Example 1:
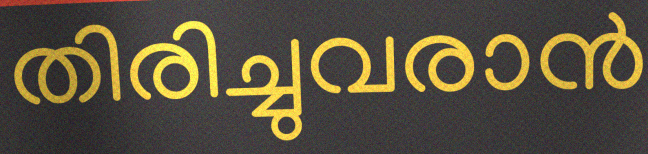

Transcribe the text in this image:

തിരിച്ചുവരാൻ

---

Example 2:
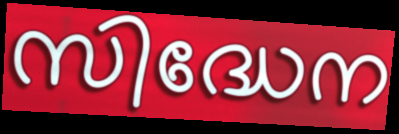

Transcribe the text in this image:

സിദ്ധേന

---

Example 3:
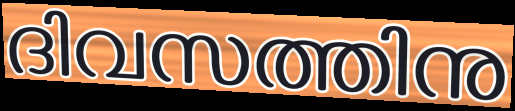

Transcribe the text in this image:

ദിവസത്തിനു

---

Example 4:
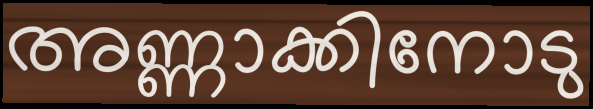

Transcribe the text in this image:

അണ്ണാക്കിനോടു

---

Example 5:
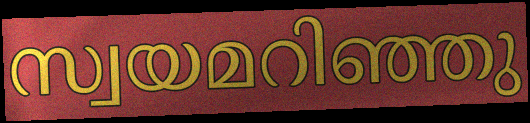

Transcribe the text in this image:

സ്വയമറിഞ്ഞു